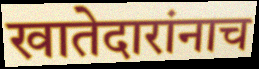
खातेदारांनाच